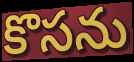
కొసను